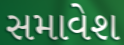
સમાવેશ